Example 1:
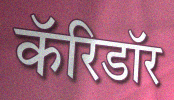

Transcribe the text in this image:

कॅरिडॉर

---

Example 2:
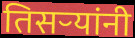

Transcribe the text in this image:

तिसऱ्यांनी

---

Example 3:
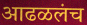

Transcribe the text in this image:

आढळलंच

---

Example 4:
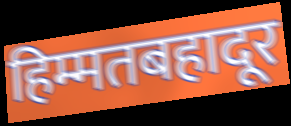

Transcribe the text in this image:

हिम्मतबहादूर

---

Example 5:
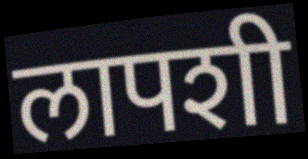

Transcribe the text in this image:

लापशी